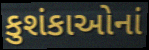
કુશંકાઓનાં